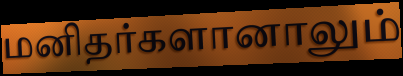
மனிதர்களானாலும்